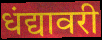
धंद्यावरी